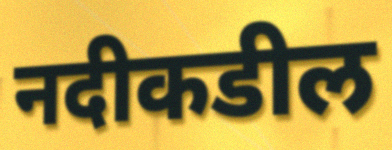
नदीकडील